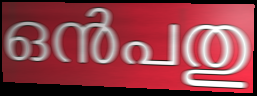
ഒൻപതു